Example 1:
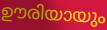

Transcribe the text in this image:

ഊരിയായും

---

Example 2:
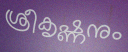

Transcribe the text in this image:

ശ്രീകൃഷ്ണനും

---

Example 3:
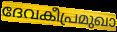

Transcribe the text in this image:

ദേവകീപ്രമുഖാ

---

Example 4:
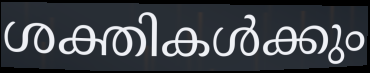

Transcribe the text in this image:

ശക്തികൾക്കും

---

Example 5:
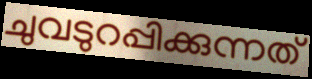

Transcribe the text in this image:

ചുവടുറപ്പിക്കുന്നത്